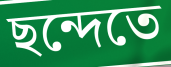
ছন্দেতে